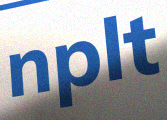
nplt